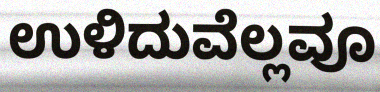
ಉಳಿದುವೆಲ್ಲವೂ